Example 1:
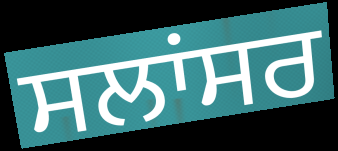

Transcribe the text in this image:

ਸਲਾਂਸਰ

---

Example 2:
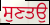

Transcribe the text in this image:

ਸੁਣਤਉ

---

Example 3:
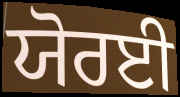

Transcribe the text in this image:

ਯੋਰਈ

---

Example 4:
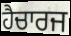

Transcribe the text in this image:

ਹੈਚਾਰਜ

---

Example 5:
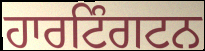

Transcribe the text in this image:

ਹਾਰਟਿੰਗਟਨ